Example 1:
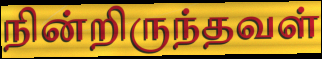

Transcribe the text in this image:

நின்றிருந்தவள்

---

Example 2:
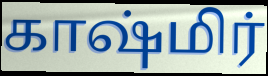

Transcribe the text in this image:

காஷ்மிர்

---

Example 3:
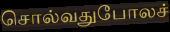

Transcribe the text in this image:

சொல்வதுபோலச்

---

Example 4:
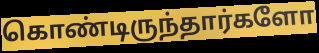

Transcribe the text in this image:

கொண்டிருந்தார்களோ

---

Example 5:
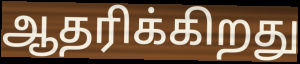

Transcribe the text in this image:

ஆதரிக்கிறது